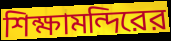
শিক্ষামন্দিরের